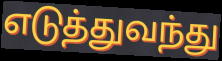
எடுத்துவந்து